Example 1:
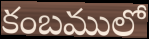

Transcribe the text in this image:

కంబములో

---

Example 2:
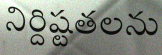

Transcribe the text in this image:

నిర్దిష్టతలను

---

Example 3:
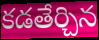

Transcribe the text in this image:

కడతేర్చిన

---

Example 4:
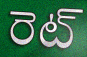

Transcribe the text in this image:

రెట్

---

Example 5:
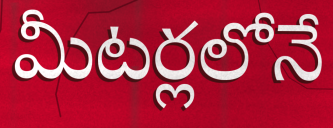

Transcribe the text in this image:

మీటర్లలోనే